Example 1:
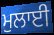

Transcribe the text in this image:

ਮੁਲਾਈ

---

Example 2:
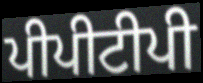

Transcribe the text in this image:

ਪੀਪੀਟੀਪੀ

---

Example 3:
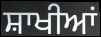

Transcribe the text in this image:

ਸ਼ਾਖੀਆਂ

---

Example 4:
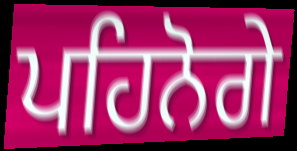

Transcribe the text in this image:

ਪਹਿਨੋਗੇ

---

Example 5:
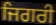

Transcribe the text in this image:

ਜਿਗਰੀ